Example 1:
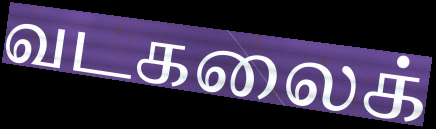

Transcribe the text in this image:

வடகலைக்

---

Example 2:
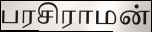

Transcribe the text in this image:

பரசிராமன்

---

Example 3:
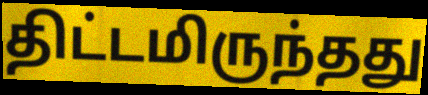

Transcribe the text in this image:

திட்டமிருந்தது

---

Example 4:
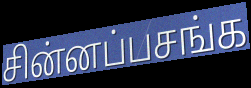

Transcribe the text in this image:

சின்னப்பசங்க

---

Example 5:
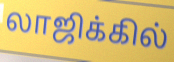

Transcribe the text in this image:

லாஜிக்கில்